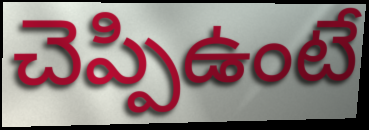
చెప్పిఉంటే